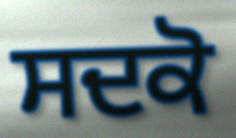
ਸਦਕੋ